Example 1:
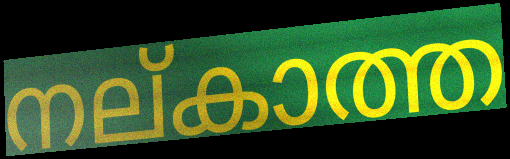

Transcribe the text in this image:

നല്കാത്ത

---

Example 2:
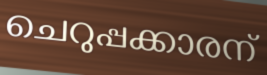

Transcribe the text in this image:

ചെറുപ്പക്കാരന്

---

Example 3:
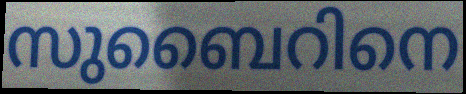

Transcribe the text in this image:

സുബൈറിനെ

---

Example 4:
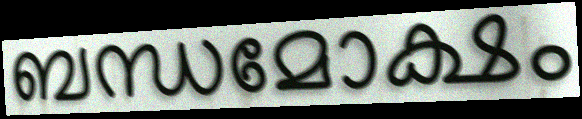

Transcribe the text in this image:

ബന്ധമോക്ഷം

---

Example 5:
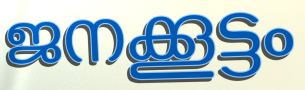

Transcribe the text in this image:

ജനക്കൂട്ടം